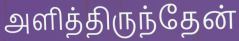
அளித்திருந்தேன்